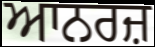
ਆਨਰਜ਼